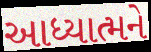
આધ્યાત્મને